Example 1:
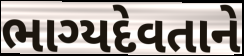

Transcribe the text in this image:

ભાગ્યદેવતાને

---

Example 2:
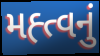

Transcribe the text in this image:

મહ્ત્વનું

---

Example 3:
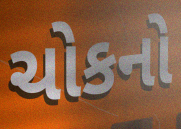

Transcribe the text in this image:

ચોકનો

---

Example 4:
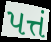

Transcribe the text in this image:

પત્તં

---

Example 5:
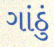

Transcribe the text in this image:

ગાંઠું